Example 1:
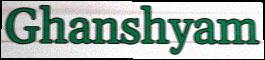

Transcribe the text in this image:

Ghanshyam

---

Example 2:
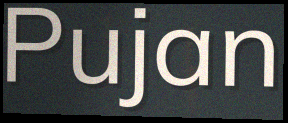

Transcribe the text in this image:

Pujan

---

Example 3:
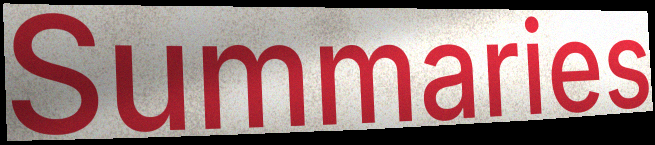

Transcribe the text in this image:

Summaries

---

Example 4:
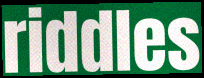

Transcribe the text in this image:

riddles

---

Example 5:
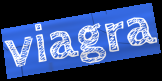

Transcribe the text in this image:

viagra